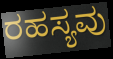
ರಹಸ್ಯವು